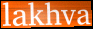
lakhva